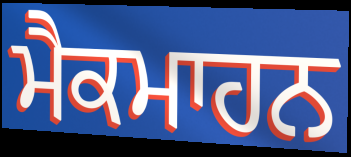
ਮੈਕਮਾਹਨ